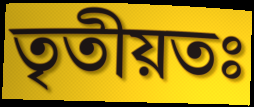
তৃতীয়তঃ